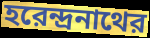
হরেন্দ্রনাথের